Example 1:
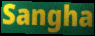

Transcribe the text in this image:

Sangha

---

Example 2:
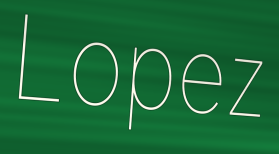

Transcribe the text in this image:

Lopez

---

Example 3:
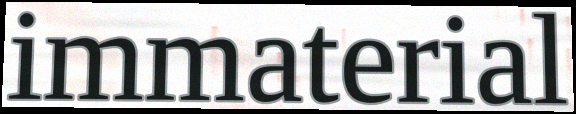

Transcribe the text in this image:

immaterial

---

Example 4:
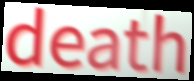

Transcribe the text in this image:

death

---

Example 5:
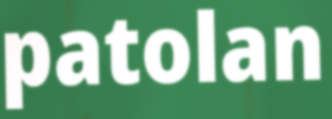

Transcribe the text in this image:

patolan